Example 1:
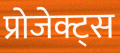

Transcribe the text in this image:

प्रोजेक्ट्स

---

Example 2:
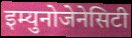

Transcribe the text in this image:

इम्युनोजेनेसिटी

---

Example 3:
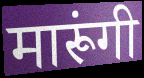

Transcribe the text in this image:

मारूंगी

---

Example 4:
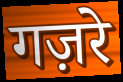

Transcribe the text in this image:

गज़रे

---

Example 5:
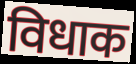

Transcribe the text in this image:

विधाक